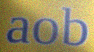
aob